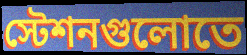
স্টেশনগুলোতে